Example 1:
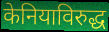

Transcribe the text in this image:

केनियाविरुद्ध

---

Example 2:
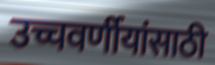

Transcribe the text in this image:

उच्चवर्णीयांसाठी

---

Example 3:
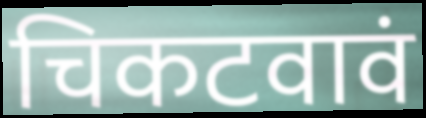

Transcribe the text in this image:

चिकटवावं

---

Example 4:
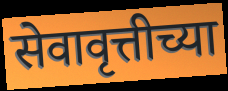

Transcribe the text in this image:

सेवावृत्तीच्या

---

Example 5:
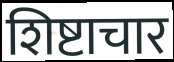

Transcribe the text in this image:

शिष्टाचार